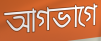
আগভাগে